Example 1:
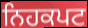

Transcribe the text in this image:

ਨਿਹਕਪਟ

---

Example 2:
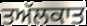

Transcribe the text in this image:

ਤਅੱਲਕਾਤ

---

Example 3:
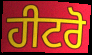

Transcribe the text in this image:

ਹੀਟਰੋ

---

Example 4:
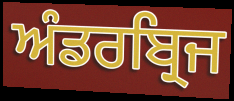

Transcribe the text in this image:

ਅੰਡਰਬ੍ਰਿਜ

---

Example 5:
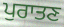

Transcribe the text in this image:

ਪੁਰਾਤਣ